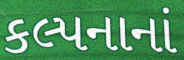
કલ્પનાનાં